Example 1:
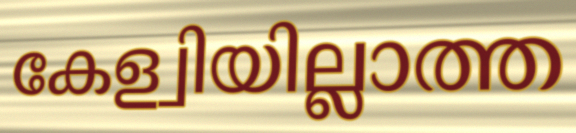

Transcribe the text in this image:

കേള്വിയില്ലാത്ത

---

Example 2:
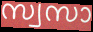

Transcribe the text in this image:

സ്വസാ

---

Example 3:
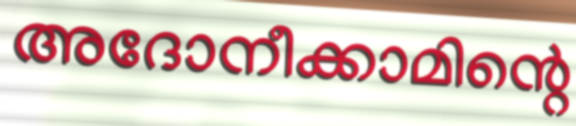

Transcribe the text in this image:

അദോനീക്കാമിന്റെ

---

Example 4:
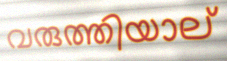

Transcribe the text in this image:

വരുത്തിയാല്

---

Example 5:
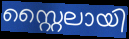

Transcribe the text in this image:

സ്റ്റൈലായി